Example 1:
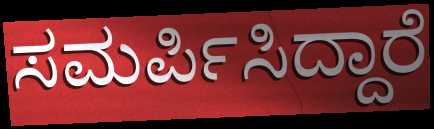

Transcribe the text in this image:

ಸಮರ್ಪಿಸಿದ್ದಾರೆ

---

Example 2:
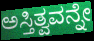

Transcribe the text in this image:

ಅಸ್ತಿತ್ವವನ್ನೇ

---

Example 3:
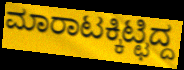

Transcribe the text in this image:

ಮಾರಾಟಕ್ಕಿಟ್ಟಿದ್ದ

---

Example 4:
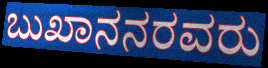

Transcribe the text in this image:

ಬುಖಾನನರವರು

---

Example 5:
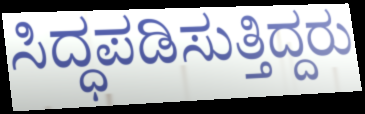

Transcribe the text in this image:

ಸಿದ್ಧಪಡಿಸುತ್ತಿದ್ದರು